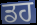
ਡਹ